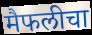
मैफलीचा